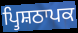
ਪ੍ਤਿਸ਼ਠਾਪਕ